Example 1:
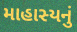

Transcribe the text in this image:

માહાસ્યનું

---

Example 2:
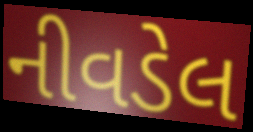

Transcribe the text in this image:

નીવડેલ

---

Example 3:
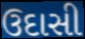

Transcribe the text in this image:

ઉદાસી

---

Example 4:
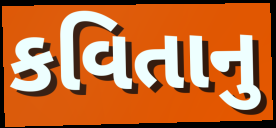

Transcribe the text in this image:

કવિતાનુ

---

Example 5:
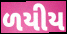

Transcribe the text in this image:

ળયીય